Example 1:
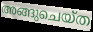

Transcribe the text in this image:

അങ്ങുചെയ്ത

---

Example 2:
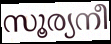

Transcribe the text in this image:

സൂര്യനീ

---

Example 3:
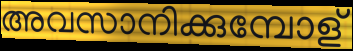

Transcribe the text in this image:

അവസാനിക്കുമ്പോള്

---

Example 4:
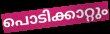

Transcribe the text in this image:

പൊടിക്കാറ്റും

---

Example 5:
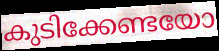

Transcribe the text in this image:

കുടിക്കേണ്ടയോ